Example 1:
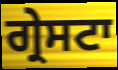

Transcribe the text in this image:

ਗ੍ਰੇਸਟਾ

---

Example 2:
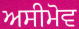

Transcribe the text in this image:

ਅਸੀਮੋਵ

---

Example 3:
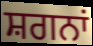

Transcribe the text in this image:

ਸ਼ਗਨਾਂ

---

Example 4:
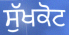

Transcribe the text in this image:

ਸੁੱਖਕੋਟ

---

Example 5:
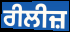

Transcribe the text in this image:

ਰੀਲੀਜ਼